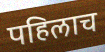
पहिलाच